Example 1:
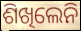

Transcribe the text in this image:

ଶିଖିଲେନି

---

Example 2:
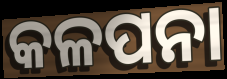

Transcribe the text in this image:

କଳପନା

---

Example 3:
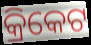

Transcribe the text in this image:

କ୍ରିକେଟ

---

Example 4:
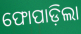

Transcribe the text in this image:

ଫୋପାଡ଼ିଲା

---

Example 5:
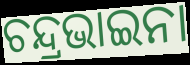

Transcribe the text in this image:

ଚନ୍ଦ୍ରଭାଇନା